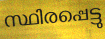
സ്ഥിരപ്പെട്ടു